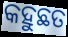
କହୁଛତ